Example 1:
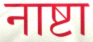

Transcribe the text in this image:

नाष्टा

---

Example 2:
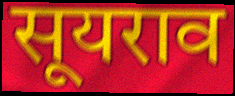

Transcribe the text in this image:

सूयराव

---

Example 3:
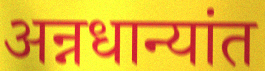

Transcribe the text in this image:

अन्नधान्यांत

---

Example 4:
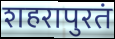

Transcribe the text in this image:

शहरापुरतं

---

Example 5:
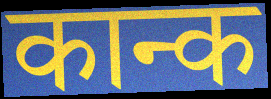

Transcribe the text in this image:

कान्क